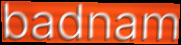
badnam